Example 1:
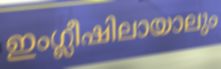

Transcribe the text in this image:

ഇംഗ്ലീഷിലായാലും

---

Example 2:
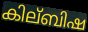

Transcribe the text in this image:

കില്ബിഷ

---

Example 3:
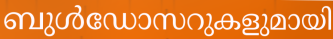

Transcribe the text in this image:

ബുൾഡോസറുകളുമായി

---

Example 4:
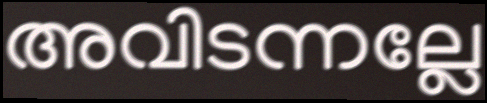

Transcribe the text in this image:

അവിടന്നല്ലേ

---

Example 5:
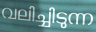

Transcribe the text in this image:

വലിച്ചിടുന്ന